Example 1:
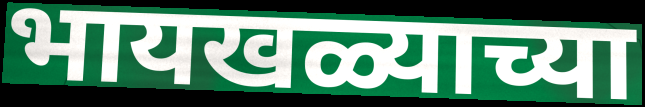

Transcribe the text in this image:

भायखळ्याच्या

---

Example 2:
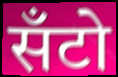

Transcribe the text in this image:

सँटो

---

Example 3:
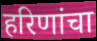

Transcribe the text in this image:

हरिणांचा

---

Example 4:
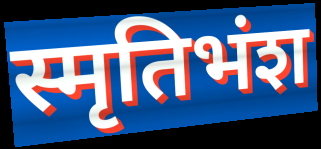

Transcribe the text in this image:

स्मृतिभंश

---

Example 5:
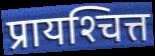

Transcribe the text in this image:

प्रायश्चित्त